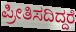
ಪ್ರೀತಿಸದಿದ್ದರೆ